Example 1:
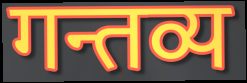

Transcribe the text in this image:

गन्तव्य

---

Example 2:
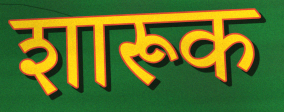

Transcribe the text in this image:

शारूक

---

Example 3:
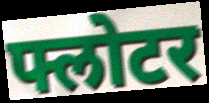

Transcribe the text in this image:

फ्लोटर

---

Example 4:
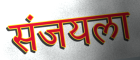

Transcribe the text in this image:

संजयला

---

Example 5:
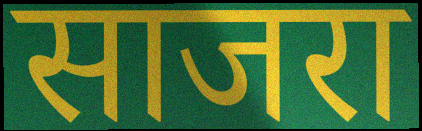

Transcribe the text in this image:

साजरा